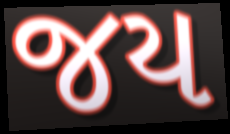
જય